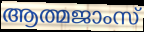
ആത്മജാംസ്